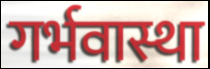
गर्भवास्था